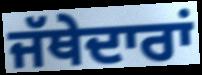
ਜੱਥੇਦਾਰਾਂ